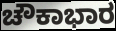
ಚೌಕಾಭಾರ